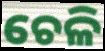
ଚେଳି